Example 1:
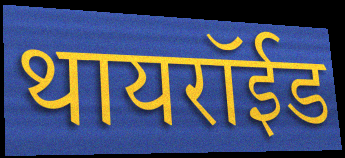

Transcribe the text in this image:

थायरॉईड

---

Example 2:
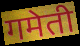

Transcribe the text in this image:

गमेती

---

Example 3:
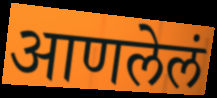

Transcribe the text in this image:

आणलेलं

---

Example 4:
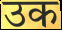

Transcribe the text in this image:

उक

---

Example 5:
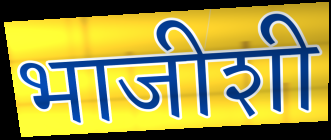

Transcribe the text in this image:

भाजीशी